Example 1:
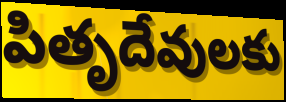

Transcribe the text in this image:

పితృదేవులకు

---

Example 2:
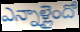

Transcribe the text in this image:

ఎన్నాళ్లైందో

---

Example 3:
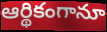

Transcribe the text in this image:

ఆర్థికంగానూ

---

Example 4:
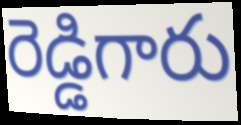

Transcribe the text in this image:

రెడ్డిగారు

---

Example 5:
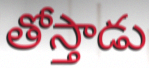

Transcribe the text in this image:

తోస్తాడు